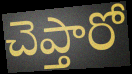
చెప్తారో